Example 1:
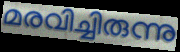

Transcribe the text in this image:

മരവിച്ചിരുന്നു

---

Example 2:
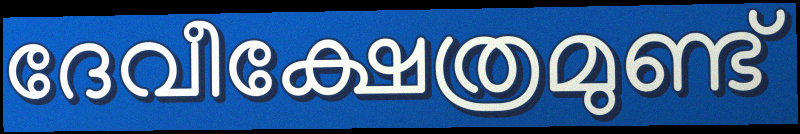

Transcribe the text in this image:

ദേവീക്ഷേത്രമുണ്ട്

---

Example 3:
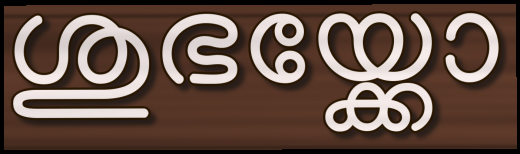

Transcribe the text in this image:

ശുഭയ്ക്കോ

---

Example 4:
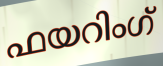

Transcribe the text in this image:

ഫയറിംഗ്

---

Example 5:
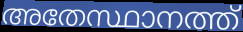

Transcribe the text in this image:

അതേസ്ഥാനത്ത്